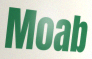
Moab